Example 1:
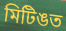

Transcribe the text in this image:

মিটিঙত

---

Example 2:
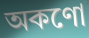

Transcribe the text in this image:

অকণো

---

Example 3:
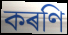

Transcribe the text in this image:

কৰণি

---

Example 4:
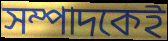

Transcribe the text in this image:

সম্পাদকেই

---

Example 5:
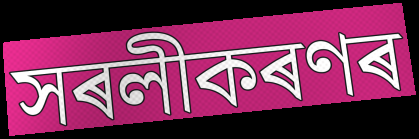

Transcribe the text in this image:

সৰলীকৰণৰ